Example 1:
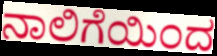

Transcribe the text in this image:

ನಾಲಿಗೆಯಿಂದ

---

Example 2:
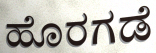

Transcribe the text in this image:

ಹೊರಗಡೆ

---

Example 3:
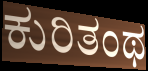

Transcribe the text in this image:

ಕುರಿತಂಥ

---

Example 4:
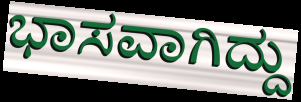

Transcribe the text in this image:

ಭಾಸವಾಗಿದ್ದು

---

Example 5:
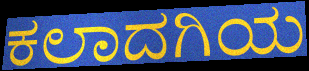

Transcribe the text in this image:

ಕಲಾದಗಿಯ